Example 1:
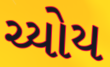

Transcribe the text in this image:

ચ્યોય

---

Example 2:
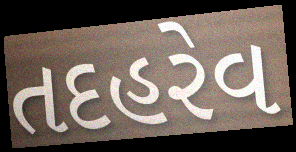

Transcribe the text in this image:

તદહરેવ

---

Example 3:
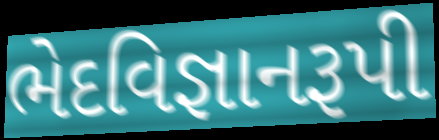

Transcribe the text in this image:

ભેદવિજ્ઞાનરૂપી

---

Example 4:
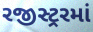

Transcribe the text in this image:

રજીસ્ટ્રરમાં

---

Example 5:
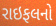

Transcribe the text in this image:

રાઇફલનો